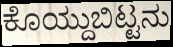
ಕೊಯ್ದುಬಿಟ್ಟನು